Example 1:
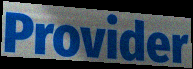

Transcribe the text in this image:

Provider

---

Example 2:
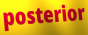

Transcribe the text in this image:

posterior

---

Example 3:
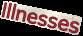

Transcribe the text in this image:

Illnesses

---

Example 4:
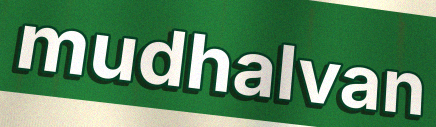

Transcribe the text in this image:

mudhalvan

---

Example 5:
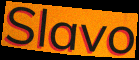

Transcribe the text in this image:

Slavo